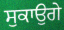
ਸੁਕਾਉਗੇ